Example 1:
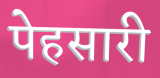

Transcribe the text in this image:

पेहसारी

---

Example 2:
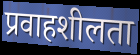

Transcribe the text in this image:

प्रवाहशीलता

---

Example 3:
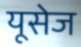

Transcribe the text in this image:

यूसेज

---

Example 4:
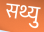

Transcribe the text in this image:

सथ्यु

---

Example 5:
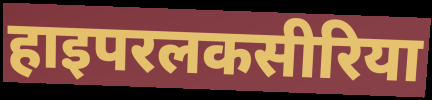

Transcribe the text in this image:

हाइपरलकसीरिया